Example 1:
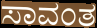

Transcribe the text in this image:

ಸಾವಂತ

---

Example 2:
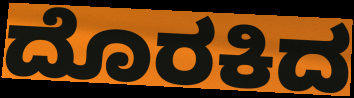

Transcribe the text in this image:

ದೊರಕಿದ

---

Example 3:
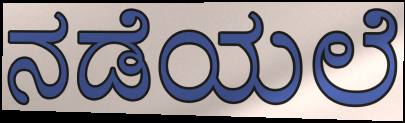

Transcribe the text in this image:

ನಡೆಯಲೆ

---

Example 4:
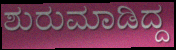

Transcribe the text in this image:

ಶುರುಮಾಡಿದ್ದ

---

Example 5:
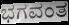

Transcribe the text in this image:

ಭಗವಂತ